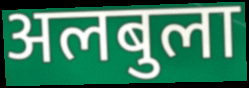
अलबुला